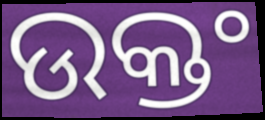
ଉକ୍ତଂ